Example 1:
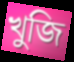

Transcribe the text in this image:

খুজি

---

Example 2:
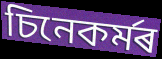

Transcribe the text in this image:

চিনেকৰ্মৰ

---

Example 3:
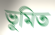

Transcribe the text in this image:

ভূমিত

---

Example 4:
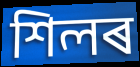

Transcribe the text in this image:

শিলৰ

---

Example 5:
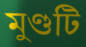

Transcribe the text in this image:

মুণ্ডটি